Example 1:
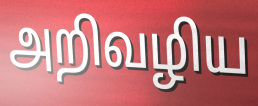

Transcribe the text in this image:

அறிவழிய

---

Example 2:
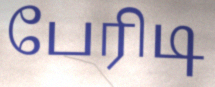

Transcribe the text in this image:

பேரிடி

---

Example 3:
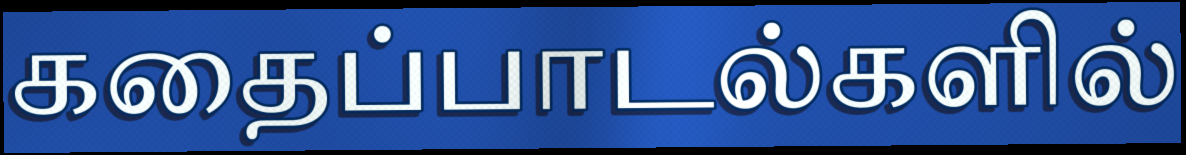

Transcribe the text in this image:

கதைப்பாடல்களில்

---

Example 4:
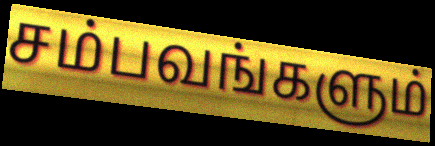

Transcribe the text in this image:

சம்பவங்களும்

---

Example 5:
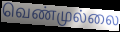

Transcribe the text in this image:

வெண்முல்லை